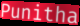
Punitha